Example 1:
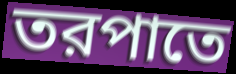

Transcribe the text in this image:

তরপাতে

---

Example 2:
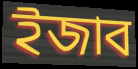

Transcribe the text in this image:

ইজাব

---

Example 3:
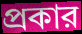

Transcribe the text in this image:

প্রকার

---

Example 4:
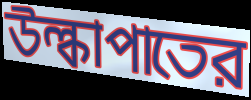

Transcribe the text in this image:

উল্কাপাতের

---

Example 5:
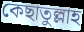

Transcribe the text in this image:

কেছাতুল্লাহ